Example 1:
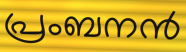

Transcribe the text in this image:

പ്രംബനൻ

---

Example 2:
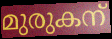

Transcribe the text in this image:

മുരുകന്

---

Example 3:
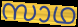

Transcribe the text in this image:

സാഥ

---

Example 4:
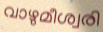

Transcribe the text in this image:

വാഴുമീശ്വരി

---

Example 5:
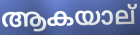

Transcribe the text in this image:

ആകയാല്